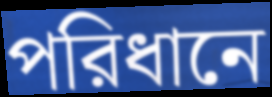
পরিধানে